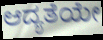
ಆದ್ಯತೆಯೇ